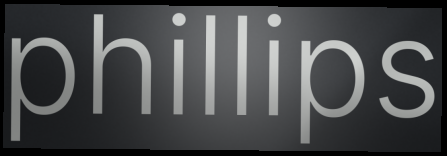
phillips